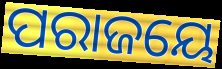
ପରାଜୟେ